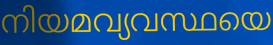
നിയമവ്യവസ്ഥയെ